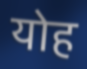
योह